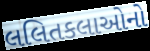
લલિતકલાઓનો